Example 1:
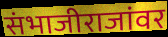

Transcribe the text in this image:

संभाजीराजांवर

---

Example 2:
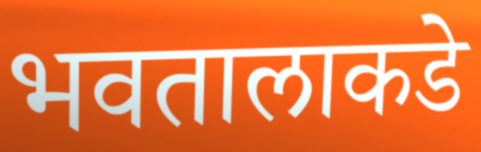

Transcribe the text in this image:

भवतालाकडे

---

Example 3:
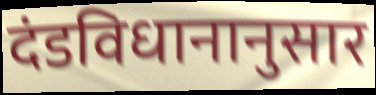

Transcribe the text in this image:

दंडविधानानुसार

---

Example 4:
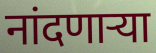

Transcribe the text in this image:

नांदणार्‍या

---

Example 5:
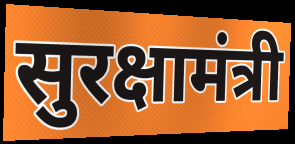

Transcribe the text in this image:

सुरक्षामंत्री